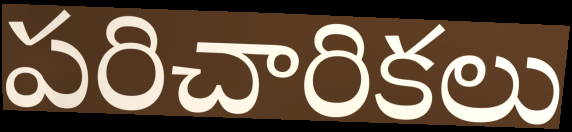
పరిచారికలు